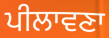
ਪੀਲਾਵਣਾ